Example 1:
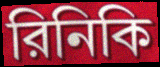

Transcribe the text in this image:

রিনিকি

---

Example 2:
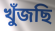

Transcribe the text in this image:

খুঁজছি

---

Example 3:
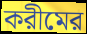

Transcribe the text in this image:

করীমের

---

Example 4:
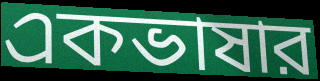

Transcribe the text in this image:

একভাষার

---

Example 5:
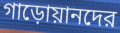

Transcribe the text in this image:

গাড়োয়ানদের